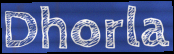
Dhorla